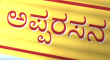
ಅಪ್ಪರಸನ